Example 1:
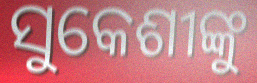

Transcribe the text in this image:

ସୁକେଶୀଙ୍କୁ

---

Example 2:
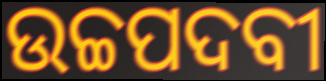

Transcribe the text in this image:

ଉଚ୍ଚପଦବୀ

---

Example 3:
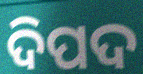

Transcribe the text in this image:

ଦିପଦ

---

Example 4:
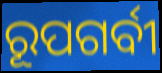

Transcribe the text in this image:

ରୂପଗର୍ବୀ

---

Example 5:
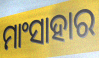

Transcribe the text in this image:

ମାଂସାହାର